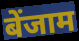
बेंजाम